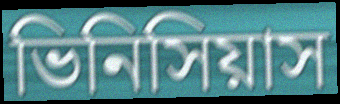
ভিনিসিয়াস